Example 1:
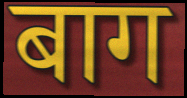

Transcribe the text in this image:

बाग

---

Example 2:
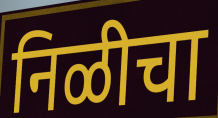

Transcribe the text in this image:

निळीचा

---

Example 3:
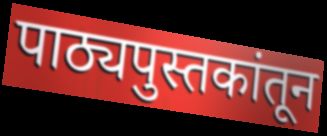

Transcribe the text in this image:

पाठ्यपुस्तकांतून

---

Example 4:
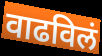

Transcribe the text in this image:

वाढविलं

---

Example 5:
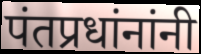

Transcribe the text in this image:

पंतप्रधांनांनी